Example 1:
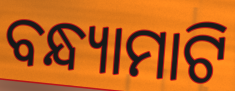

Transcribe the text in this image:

ବନ୍ଧ୍ୟାମାଟି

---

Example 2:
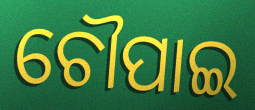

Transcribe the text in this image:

ଚୌପାଇ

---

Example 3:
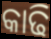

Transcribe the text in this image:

କାଢି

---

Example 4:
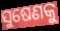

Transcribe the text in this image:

ସୁଷେଣକୁ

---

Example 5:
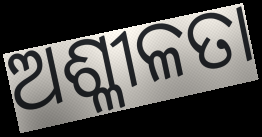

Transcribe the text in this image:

ଅଶ୍ଳୀଳତା